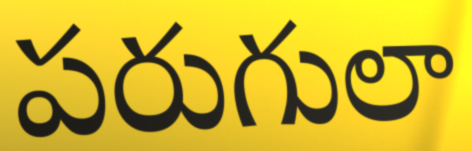
పరుగులా